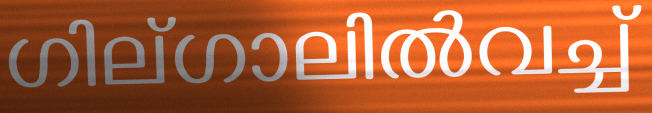
ഗില്ഗാലിൽവച്ച്